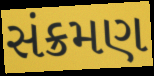
સંક્રમણ